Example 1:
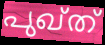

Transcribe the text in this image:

പുഖ്ത്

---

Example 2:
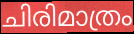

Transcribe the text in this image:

ചിരിമാത്രം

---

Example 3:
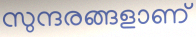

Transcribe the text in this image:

സുന്ദരങ്ങളാണ്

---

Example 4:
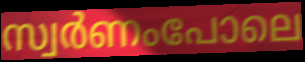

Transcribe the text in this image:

സ്വർണംപോലെ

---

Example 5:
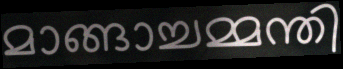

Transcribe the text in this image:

മാങ്ങാച്ചമ്മന്തി